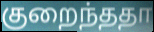
குறைந்ததா